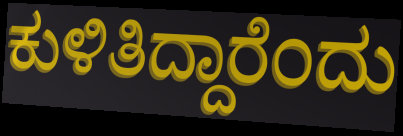
ಕುಳಿತಿದ್ದಾರೆಂದು